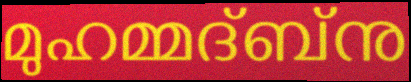
മുഹമ്മദ്ബ്നു